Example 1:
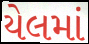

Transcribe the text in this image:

યેલમાં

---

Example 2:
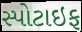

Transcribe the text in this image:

સ્પોટાઇફ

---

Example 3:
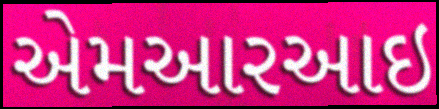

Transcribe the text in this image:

એમઆરઆઇ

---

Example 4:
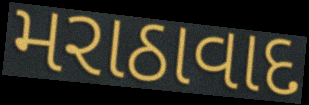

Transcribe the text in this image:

મરાઠાવાદ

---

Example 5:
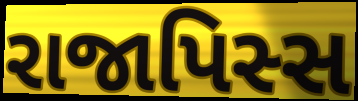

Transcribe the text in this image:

રાજાપિસ્સ